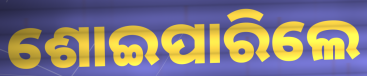
ଶୋଇପାରିଲେ